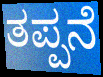
ತಪ್ಪನೆ